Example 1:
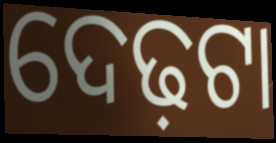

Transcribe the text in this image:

ଦେଢ଼ଟା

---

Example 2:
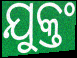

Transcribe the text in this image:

ଯୁକ୍ତଂ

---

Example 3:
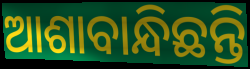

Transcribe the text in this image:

ଆଶାବାନ୍ଧିଛନ୍ତି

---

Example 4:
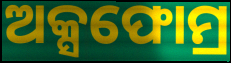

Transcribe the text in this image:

ଅକ୍ସଫୋମ୍ର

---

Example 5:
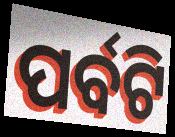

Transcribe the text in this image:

ପର୍ବଟି